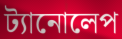
ট্যানোলেপ